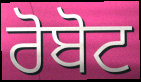
ਰੋਬੋਟ